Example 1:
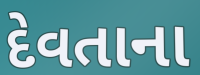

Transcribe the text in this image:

દેવતાના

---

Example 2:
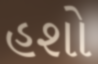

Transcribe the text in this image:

હશો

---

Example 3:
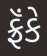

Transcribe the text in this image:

ફ્રૅંકે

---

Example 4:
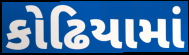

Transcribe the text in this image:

કોઢિયામાં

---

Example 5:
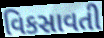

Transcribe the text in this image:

વિકસાવતી